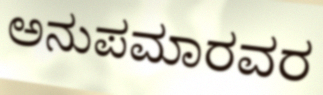
ಅನುಪಮಾರವರ